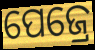
ପେଜ୍ରେ